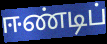
ஈண்டிப்